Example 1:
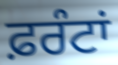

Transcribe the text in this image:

ਫ਼ਰੰਟਾਂ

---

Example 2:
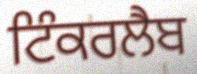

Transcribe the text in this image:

ਟਿੰਕਰਲੈਬ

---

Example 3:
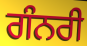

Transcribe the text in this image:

ਗੰਨਰੀ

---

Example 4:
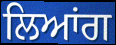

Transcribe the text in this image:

ਲਿਆਂਗ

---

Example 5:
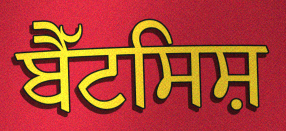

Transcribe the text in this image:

ਬੈੱਟਸਿਸ਼